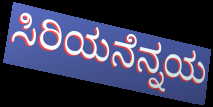
ಸಿರಿಯನೆನ್ನಯ